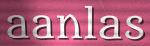
aanlas